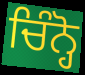
ਚਿੰਨ੍ਹੋ